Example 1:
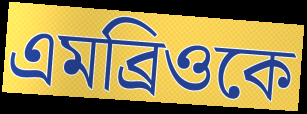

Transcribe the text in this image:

এমব্রিওকে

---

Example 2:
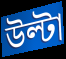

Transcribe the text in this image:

উল্টা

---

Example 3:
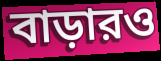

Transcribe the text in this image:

বাড়ারও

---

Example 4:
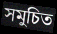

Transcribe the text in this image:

সমুচিত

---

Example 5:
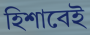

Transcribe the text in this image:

হিশাবেই